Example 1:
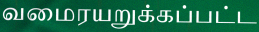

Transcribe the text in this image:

வமைரயறுக்கப்பட்ட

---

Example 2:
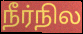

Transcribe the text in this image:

நீர்நில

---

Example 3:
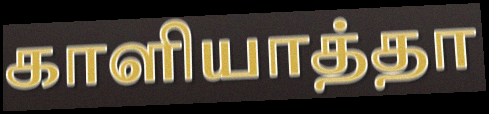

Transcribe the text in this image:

காளியாத்தா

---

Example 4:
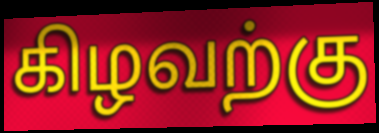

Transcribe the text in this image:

கிழவற்கு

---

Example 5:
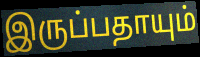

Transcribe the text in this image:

இருப்பதாயும்